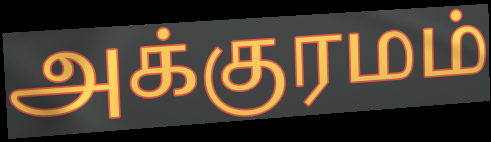
அக்குரமம்